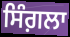
ਸਿੰਗ਼ਲਾ